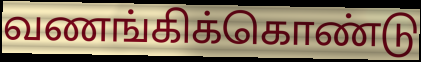
வணங்கிக்கொண்டு